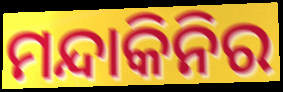
ମନ୍ଦାକିନିର